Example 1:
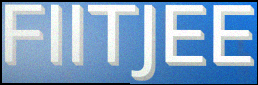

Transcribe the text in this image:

FIITJEE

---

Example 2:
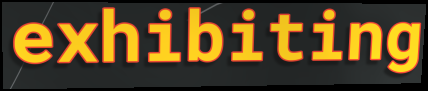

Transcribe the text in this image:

exhibiting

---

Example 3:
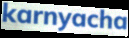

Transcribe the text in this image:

karnyacha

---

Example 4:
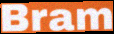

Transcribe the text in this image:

Bram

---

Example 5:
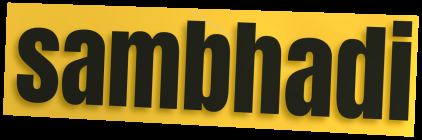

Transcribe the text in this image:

sambhadi